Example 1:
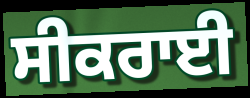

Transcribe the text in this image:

ਸੀਕਰਾਈ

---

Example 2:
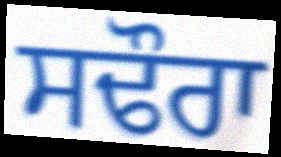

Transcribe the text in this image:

ਸਢੌਰਾ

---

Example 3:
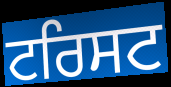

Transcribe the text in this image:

ਟਰਿਸਟ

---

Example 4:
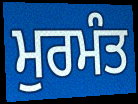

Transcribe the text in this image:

ਮੁਰਮੰਤ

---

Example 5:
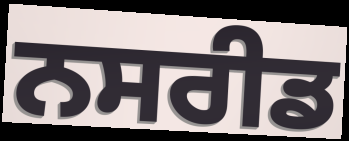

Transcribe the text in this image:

ਨਸਰੀਡ